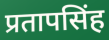
प्रतापसिंह